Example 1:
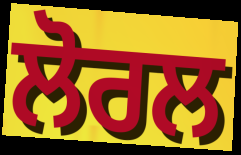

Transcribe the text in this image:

ਲੋਰਲ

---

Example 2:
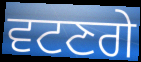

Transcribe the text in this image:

ਵਟਣਗੇ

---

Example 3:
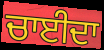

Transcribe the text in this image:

ਚਾਈਦਾ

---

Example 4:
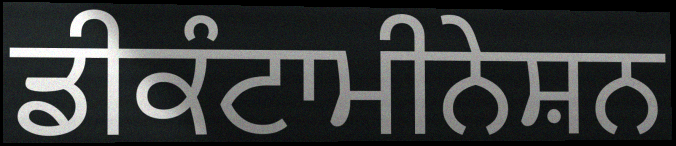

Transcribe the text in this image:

ਡੀਕੰਟਾਮੀਨੇਸ਼ਨ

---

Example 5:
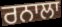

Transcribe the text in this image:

ਰਨਾਲਾ